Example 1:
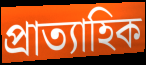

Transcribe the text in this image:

প্ৰাত্যাহিক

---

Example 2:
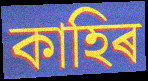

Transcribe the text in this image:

কাহিৰ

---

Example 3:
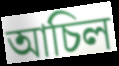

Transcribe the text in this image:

আচিল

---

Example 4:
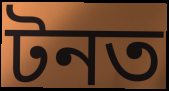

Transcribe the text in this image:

টনত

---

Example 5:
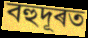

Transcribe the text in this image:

বহুদূৰত